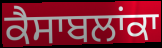
ਕੈਸਾਬਲਾਂਕਾ